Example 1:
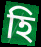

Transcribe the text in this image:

হি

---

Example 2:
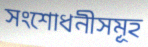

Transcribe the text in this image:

সংশোধনীসমূহ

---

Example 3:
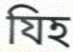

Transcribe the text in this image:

যিহ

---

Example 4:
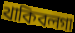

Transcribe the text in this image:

থাকিবলগা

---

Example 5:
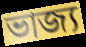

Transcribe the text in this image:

ভাজ্য